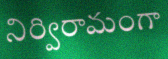
నిర్విరామంగా